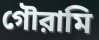
গৌরামি